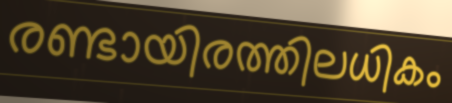
രണ്ടായിരത്തിലധികം